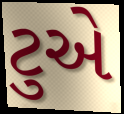
ટુએ